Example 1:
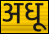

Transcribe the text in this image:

अधू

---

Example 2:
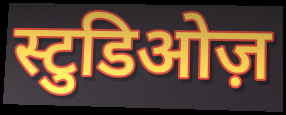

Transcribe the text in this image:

स्टुडिओज़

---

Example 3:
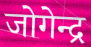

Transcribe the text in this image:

जोगेन्द्र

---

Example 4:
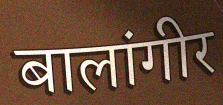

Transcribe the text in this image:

बालांगीर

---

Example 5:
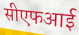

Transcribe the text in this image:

सीएफआई